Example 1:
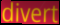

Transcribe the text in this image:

divert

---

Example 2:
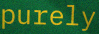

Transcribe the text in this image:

purely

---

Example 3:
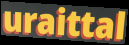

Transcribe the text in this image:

uraittal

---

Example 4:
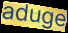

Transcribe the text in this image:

aduge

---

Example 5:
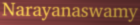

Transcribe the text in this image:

Narayanaswamy